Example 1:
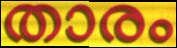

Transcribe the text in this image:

താരം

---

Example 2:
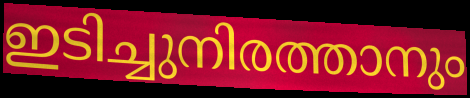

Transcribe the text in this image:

ഇടിച്ചുനിരത്താനും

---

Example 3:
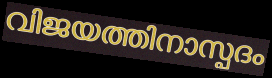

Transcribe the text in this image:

വിജയത്തിനാസ്പദം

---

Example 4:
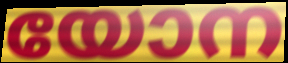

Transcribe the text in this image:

യോന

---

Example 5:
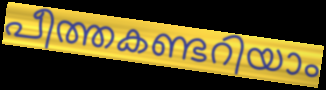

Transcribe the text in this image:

പീത്തകണ്ടറിയാം